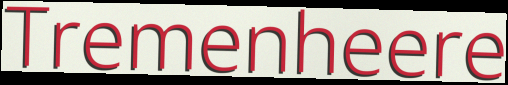
Tremenheere